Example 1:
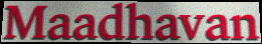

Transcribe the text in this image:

Maadhavan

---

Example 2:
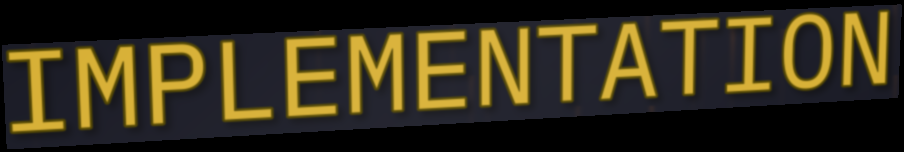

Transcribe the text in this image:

IMPLEMENTATION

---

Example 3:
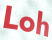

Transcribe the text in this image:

Loh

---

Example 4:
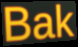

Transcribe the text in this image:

Bak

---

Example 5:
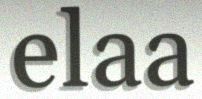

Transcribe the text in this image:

elaa